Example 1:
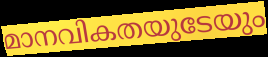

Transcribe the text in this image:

മാനവികതയുടേയും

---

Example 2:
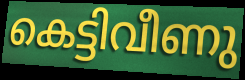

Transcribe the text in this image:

കെട്ടിവീണു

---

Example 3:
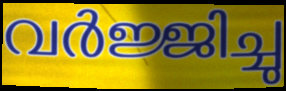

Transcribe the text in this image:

വർജ്ജിച്ചു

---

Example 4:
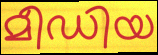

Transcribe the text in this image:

മീഡിയ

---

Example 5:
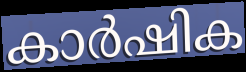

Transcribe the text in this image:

കാർഷിക